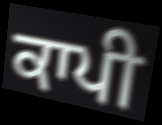
ਕਾਪੀ